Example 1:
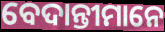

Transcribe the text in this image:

ବେଦାନ୍ତୀମାନେ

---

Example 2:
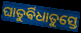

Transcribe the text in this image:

ଘାତୁର୍ଵିଧାତୁସ୍ତେ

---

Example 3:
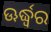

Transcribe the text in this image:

ଊର୍ଦ୍ଧ୍ଵର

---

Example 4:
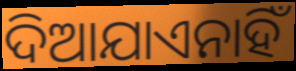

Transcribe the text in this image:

ଦିଆଯାଏନାହିଁ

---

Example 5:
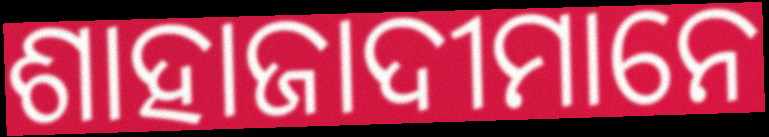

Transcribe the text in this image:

ଶାହାଜାଦୀମାନେ